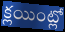
క్లయింట్లో